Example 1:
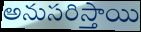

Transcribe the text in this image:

అనుసరిస్తాయి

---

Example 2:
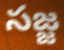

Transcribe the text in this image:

సజ్జ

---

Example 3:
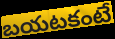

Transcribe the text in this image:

బయటకంటే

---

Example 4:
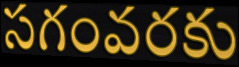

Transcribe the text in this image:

సగంవరకు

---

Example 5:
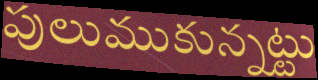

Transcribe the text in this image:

పులుముకున్నట్టు